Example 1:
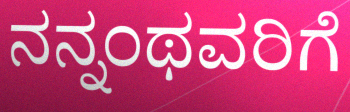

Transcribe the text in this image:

ನನ್ನಂಥವರಿಗೆ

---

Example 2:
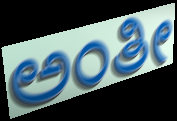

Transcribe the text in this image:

ಅಂತೀ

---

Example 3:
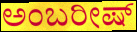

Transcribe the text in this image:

ಅಂಬರೀಷ್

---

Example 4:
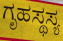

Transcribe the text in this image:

ಗೃಹಸ್ಥಸ್ಯ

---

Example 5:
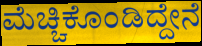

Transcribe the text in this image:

ಮೆಚ್ಚಿಕೊಂಡಿದ್ದೇನೆ